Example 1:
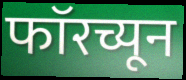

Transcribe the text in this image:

फॉरच्यून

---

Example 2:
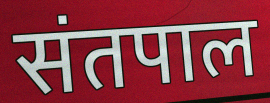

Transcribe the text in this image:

संतपाल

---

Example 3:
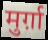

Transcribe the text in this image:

मुर्ग़ा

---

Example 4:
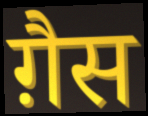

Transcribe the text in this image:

ग़ैस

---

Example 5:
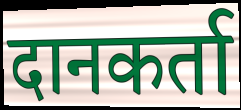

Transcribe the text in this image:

दानकर्ता